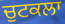
ਚੁਟਕਲਾ